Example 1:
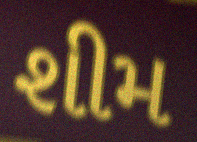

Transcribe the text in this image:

શીમ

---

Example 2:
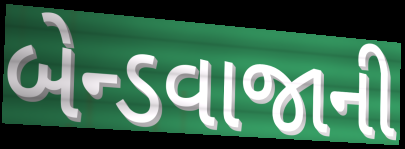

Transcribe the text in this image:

બેન્ડવાજાની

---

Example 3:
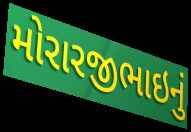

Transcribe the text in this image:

મોરારજીભાઇનું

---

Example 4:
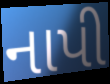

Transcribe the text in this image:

નાપી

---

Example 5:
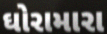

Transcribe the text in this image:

ઘોરામારા